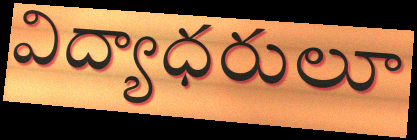
విద్యాధరులూ